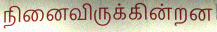
நினைவிருக்கின்றன